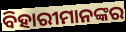
ବିହାରୀମାନଙ୍କର